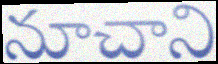
నూచాని